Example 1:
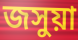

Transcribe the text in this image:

জসুয়া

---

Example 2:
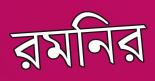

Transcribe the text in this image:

রমনির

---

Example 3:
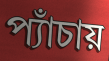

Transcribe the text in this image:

প্যাঁচায়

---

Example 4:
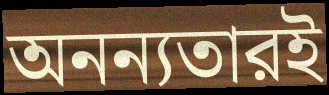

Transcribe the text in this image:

অনন্যতারই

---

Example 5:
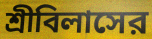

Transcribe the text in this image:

শ্রীবিলাসের